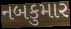
નબકુમાર